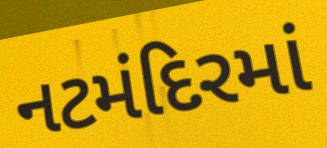
નટમંદિરમાં